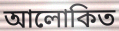
আলোকিত